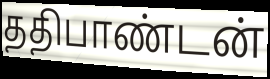
ததிபாண்டன்